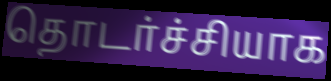
தொடர்ச்சியாக